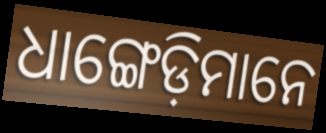
ଧାଙ୍ଗେଡ଼ିମାନେ